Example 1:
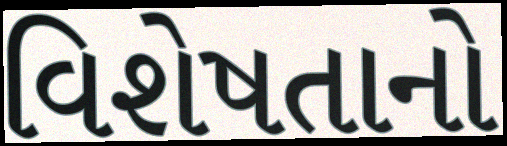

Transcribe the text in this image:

વિશેષતાનો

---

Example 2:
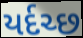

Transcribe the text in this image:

યર્દચ્છ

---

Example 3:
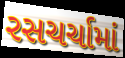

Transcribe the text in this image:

રસચર્ચામાં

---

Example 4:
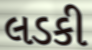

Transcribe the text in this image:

લડકી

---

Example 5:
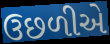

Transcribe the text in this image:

ઉછળીએ